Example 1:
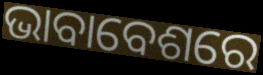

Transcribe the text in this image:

ଭାବାବେଶରେ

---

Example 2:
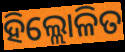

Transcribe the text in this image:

ହିଲ୍ଲୋଳିତ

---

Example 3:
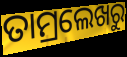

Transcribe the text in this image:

ତାମ୍ରଲେଖରୁ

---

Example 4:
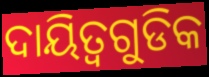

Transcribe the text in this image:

ଦାୟିତ୍ୱଗୁଡିକ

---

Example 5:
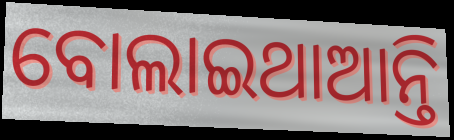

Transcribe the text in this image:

ବୋଲାଇଥାଆନ୍ତି